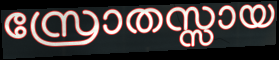
സ്രോതസ്സായ